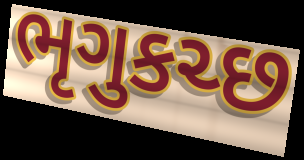
ભૃગુકચ્છ